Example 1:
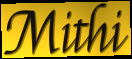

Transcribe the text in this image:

Mithi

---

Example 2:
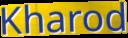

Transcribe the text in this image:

Kharod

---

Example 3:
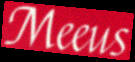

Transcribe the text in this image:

Meeus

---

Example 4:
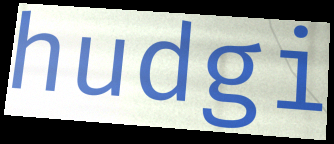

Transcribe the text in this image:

hudgi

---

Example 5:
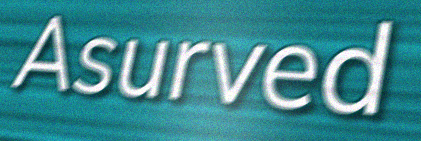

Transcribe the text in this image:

Asurved